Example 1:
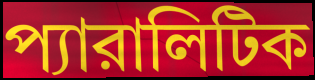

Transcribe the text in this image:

প্যারালিটিক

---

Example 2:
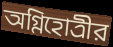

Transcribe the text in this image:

অগ্নিহোত্রীর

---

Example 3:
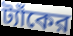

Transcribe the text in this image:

ট্যাঁকের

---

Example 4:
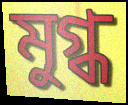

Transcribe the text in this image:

মুগ্ধ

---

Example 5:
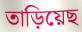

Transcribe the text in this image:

তাড়িয়েছ